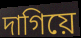
দাগিয়ে